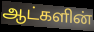
ஆட்களின்